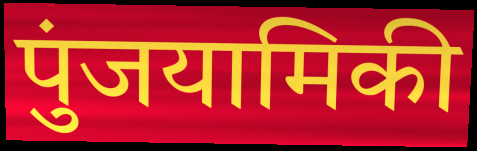
पुंजयामिकी